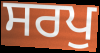
ਸਰਪੁ